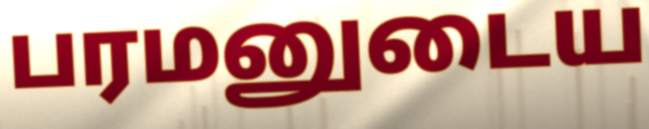
பரமனுடைய